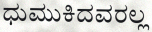
ಧುಮುಕಿದವರಲ್ಲ